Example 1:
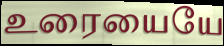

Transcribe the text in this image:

உரையையே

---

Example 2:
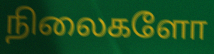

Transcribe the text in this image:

நிலைகளோ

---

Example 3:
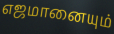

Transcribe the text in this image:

எஜமானையும்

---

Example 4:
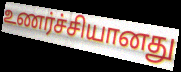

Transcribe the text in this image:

உணர்ச்சியானது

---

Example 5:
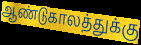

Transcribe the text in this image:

ஆண்டுகாலத்துக்கு